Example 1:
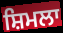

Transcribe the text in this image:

ਸ਼ਿਮਲਾ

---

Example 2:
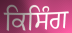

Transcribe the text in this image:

ਕਿਸਿੰਗ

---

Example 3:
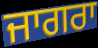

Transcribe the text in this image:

ਜਾਗਰਾ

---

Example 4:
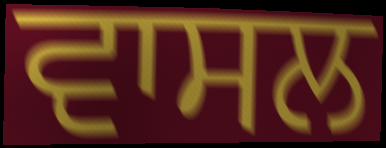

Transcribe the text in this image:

ਵਾਸਲ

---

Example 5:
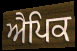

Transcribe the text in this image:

ਐਪਿਕ